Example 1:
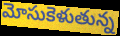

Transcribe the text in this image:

మోసుకెళుతున్న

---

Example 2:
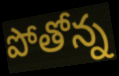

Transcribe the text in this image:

పోతోన్న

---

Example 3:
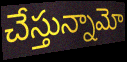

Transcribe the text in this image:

చేస్తున్నామో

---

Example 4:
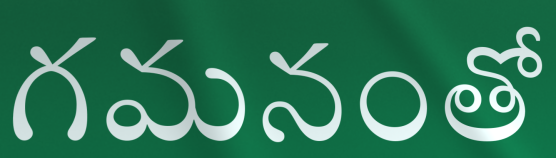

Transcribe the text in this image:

గమనంతో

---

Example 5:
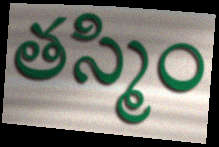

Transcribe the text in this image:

తస్మిం